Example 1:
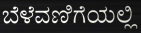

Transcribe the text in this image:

ಬೆಳೆವಣಿಗೆಯಲ್ಲಿ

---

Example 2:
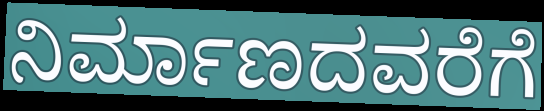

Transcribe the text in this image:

ನಿರ್ಮಾಣದವರೆಗೆ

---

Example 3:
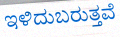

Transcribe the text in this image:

ಇಳಿದುಬರುತ್ತವೆ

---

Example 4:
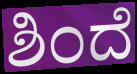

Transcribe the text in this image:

ಶಿಂದೆ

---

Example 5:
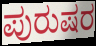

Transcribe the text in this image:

ಪುರುಷರ